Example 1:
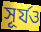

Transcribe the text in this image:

সূর্যও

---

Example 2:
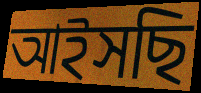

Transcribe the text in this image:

আইসছি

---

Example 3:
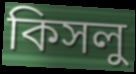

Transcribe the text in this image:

কিসলু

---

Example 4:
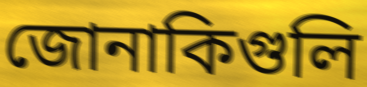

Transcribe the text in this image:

জোনাকিগুলি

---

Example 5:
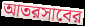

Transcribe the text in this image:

আতরসাবের